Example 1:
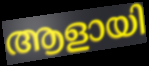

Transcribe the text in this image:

ആളായി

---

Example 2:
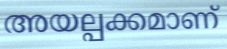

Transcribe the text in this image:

അയല്പക്കമാണ്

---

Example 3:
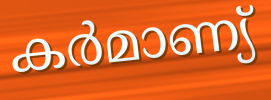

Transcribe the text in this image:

കർമാണ്യ്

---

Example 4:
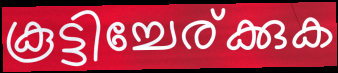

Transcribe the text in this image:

കൂട്ടിച്ചേര്ക്കുക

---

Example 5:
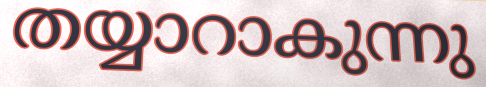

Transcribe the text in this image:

തയ്യാറാകുന്നു